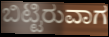
ಬಿಟ್ಟಿರುವಾಗ